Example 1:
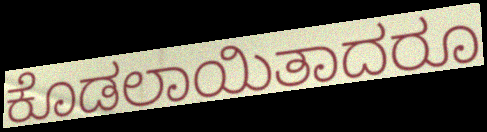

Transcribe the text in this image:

ಕೊಡಲಾಯಿತಾದರೂ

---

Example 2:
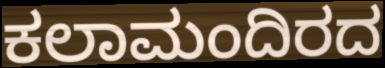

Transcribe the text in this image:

ಕಲಾಮಂದಿರದ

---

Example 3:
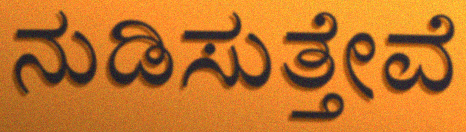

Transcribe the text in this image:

ನುಡಿಸುತ್ತೇವೆ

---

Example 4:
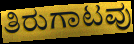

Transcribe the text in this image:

ತಿರುಗಾಟವು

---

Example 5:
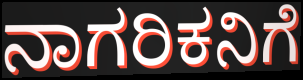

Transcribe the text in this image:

ನಾಗರಿಕನಿಗೆ